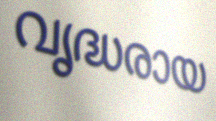
വൃദ്ധരായ